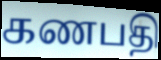
கணபதி